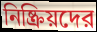
নিষ্ক্রিয়দের